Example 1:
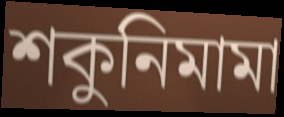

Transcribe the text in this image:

শকুনিমামা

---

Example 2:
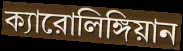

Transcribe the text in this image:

ক্যারোলিঙ্গিয়ান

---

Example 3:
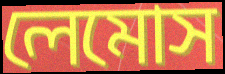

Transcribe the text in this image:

লেমোস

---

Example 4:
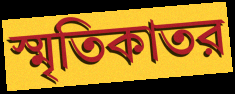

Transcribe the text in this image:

স্মৃতিকাতর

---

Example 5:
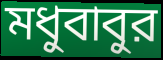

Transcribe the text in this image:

মধুবাবুর